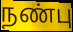
நண்பு